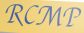
RCMP